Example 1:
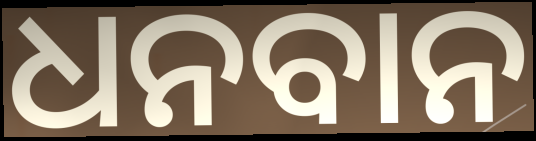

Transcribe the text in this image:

ଧନବାନ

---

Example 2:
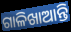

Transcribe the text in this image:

ଗାଳିଖାଆନ୍ତି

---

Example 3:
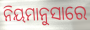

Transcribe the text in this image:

ନିୟମାନୁସାରେ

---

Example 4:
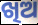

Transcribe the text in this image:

ଖିଅ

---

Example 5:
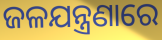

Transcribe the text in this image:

ଜଳଯନ୍ତ୍ରଣାରେ